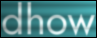
dhow